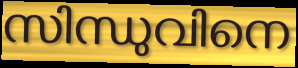
സിന്ധുവിനെ